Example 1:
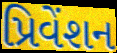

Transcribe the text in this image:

પ્રિવેંશન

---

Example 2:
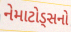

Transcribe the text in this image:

નેમાટોડ્સનો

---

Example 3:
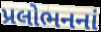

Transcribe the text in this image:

પ્રલોભનનાં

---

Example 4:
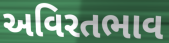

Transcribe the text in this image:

અવિરતભાવ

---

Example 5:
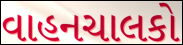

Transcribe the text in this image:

વાહનચાલકો